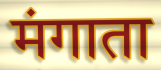
मंगाता